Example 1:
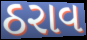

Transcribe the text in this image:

ઠરાવ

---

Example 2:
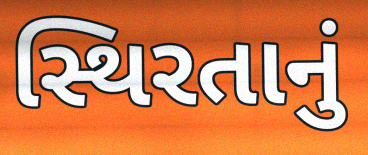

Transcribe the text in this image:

સ્થિરતાનું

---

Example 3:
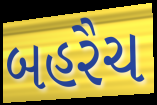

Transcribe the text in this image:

બહરૈચ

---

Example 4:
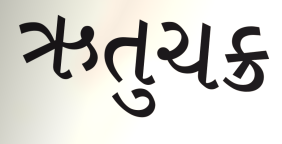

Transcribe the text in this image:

ઋતુચક્ર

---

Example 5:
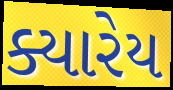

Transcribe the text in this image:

ક્યારેય